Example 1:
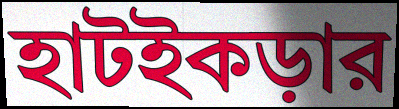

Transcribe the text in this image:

হাটইকড়ার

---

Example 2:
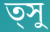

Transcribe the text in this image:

ত্সু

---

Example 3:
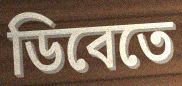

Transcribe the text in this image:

ডিবেতে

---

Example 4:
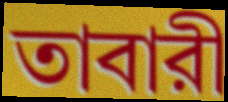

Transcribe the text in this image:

তাবারী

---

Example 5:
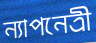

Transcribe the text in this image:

ন্যাপনেত্রী